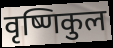
वृष्णिकुल